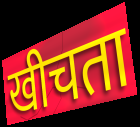
खीचता